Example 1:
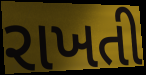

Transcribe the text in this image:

રાખતી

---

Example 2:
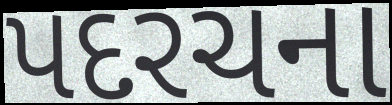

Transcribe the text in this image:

પદરચના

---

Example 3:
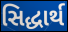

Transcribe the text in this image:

સિદ્ધાર્થ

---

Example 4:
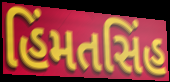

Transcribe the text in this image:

હિંમતસિંહ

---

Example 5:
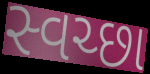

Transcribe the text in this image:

સ્વચ્છા